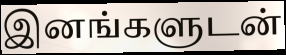
இனங்களுடன்